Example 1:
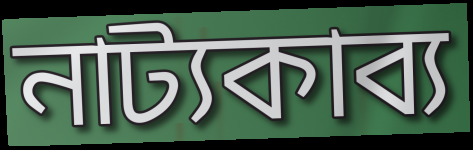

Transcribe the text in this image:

নাট্যকাব্য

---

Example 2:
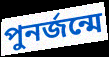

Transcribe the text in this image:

পুনর্জন্মে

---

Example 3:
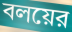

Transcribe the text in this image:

বলয়ের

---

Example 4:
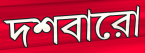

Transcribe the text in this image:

দশবারো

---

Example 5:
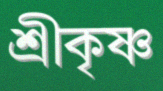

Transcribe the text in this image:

শ্রীকৃষ্ণ